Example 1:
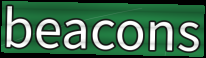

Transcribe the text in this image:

beacons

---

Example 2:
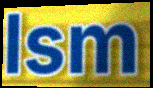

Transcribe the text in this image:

Ism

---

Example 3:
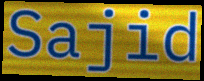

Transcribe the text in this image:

Sajid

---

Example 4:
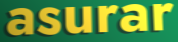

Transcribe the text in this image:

asurar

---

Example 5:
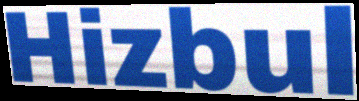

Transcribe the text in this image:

Hizbul